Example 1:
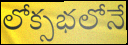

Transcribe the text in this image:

లోక్సభలోనే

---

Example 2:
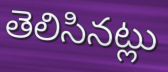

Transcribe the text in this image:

తెలిసినట్లు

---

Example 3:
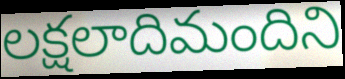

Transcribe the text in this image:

లక్షలాదిమందిని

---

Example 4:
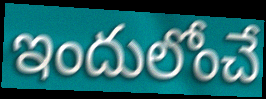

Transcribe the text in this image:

ఇందులోంచే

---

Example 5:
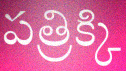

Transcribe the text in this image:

పత్రిక్కి